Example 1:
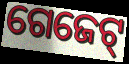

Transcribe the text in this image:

ଗେଜେଟ୍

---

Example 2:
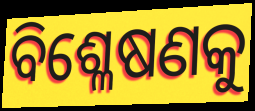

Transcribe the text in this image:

ବିଶ୍ଳେଷଣକୁ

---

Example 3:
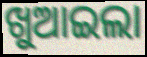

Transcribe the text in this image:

ଖୁଆଇଲା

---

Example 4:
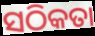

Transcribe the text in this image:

ସଠିକତା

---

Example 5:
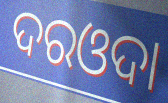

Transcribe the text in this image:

ଦରଓଦା